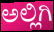
ಅಲ್ಲಿಗಿ